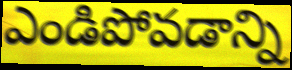
ఎండిపోవడాన్ని